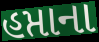
હપ્તાના